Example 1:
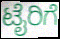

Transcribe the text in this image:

ಟೈರಿಗೆ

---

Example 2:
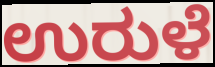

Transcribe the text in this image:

ಉರುಳೆ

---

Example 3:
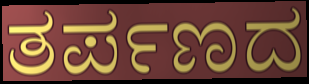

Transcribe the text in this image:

ತರ್ಪಣದ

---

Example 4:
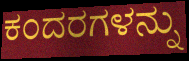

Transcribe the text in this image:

ಕಂದರಗಳನ್ನು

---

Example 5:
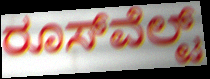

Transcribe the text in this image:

ರೂಸ್‍ವೆಲ್ಟ್